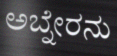
ಅಬ್ನೇರನು